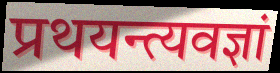
प्रथयन्त्यवज्ञां